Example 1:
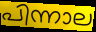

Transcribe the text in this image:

പിന്നാല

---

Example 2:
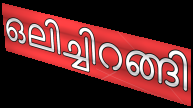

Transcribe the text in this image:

ഒലിച്ചിറങ്ങി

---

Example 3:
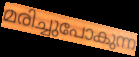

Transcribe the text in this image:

മരിച്ചുപോകുന്ന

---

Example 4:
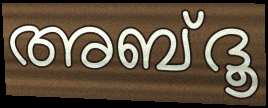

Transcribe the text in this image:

അബ്ദൂ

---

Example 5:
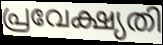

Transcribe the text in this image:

പ്രവേക്ഷ്യതി